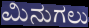
ಮಿನುಗಲು